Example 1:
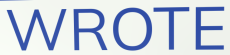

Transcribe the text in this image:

WROTE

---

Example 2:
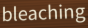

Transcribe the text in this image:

bleaching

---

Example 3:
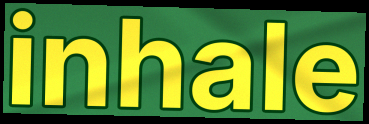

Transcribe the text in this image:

inhale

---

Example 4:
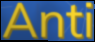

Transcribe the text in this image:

Anti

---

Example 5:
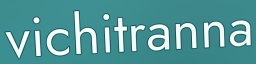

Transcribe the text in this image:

vichitranna